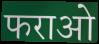
फराओ